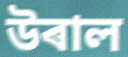
উৰাল